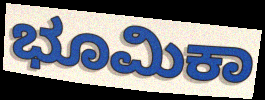
ಭೂಮಿಕಾ